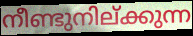
നീണ്ടുനില്ക്കുന്ന